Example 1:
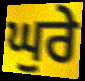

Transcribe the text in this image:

ਘੁਰੇ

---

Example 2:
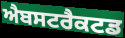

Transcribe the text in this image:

ਐਬਸਟਰੈਕਟਡ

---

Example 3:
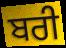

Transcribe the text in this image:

ਬਰੀ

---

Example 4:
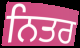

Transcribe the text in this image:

ਨਿਤਰ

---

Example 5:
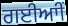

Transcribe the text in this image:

ਗਈਆੀਂ